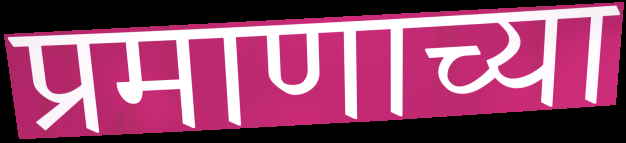
प्रमाणाच्या